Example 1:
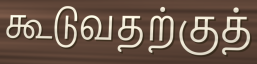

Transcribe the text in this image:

கூடுவதற்குத்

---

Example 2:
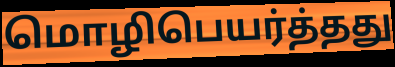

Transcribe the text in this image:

மொழிபெயர்த்தது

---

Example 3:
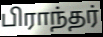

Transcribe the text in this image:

பிராந்தர்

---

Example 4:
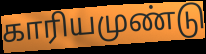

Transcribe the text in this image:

காரியமுண்டு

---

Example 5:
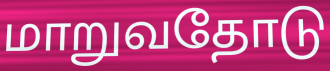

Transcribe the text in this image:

மாறுவதோடு